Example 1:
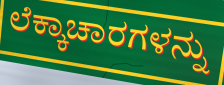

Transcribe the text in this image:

ಲೆಕ್ಕಾಚಾರಗಳನ್ನು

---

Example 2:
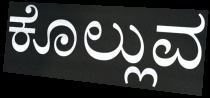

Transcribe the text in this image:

ಕೊಲ್ಲುವ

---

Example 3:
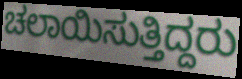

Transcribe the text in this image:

ಚಲಾಯಿಸುತ್ತಿದ್ದರು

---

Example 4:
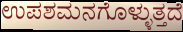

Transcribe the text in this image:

ಉಪಶಮನಗೊಳ್ಳುತ್ತದೆ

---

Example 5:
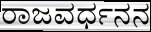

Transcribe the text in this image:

ರಾಜವರ್ಧನನ